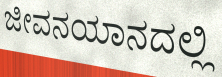
ಜೀವನಯಾನದಲ್ಲಿ